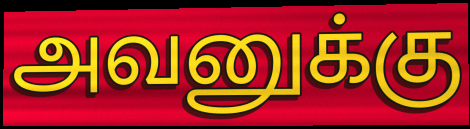
அவனுக்கு